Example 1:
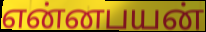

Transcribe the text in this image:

என்னபயன்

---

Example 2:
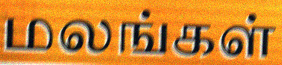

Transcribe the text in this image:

மலங்கள்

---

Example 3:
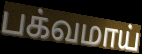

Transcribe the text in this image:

பக்வமாய்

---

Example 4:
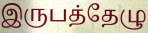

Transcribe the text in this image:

இருபத்தேழு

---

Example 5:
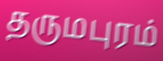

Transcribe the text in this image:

தருமபுரம்